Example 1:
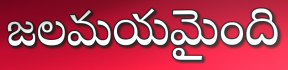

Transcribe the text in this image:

జలమయమైంది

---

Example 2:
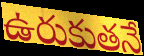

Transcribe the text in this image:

ఉరుకుతనే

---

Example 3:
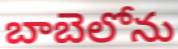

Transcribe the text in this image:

బాబెలోను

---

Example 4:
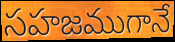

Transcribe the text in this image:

సహజముగానే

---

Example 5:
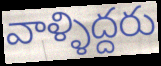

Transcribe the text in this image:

వాళ్ళిద్దరు